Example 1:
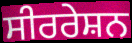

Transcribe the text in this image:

ਸੀਰਰੇਸ਼ਨ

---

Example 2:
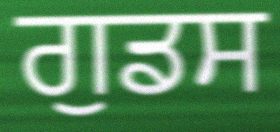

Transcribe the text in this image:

ਗੁਡਸ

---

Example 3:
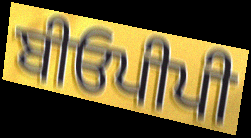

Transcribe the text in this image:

ਬੀਓਪੀਪੀ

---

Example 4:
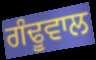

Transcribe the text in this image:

ਗੰਢੂਵਾਲ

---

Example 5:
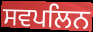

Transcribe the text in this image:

ਸਵਪਲਿਨ